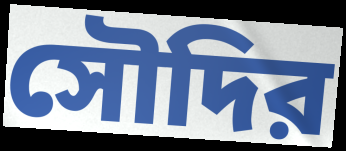
সৌদির